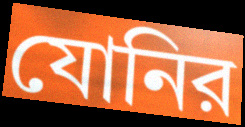
যোনির